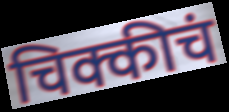
चिक्कीचं